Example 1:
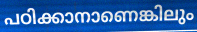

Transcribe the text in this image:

പഠിക്കാനാണെങ്കിലും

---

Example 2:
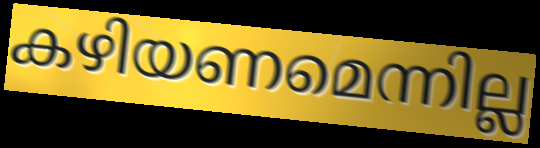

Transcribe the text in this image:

കഴിയണമെന്നില്ല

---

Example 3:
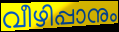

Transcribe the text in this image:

വീഴിപ്പാനും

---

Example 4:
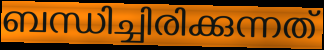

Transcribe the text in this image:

ബന്ധിച്ചിരിക്കുന്നത്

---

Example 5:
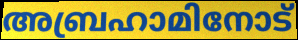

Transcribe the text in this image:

അബ്രഹാമിനോട്